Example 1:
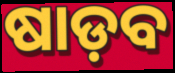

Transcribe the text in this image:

ଷାଡ଼ବ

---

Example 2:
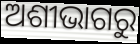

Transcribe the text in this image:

ଅଶୀଭାଗରୁ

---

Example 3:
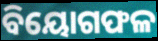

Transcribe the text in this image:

ବିୟୋଗଫଳ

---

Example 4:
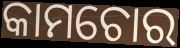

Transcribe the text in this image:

କାମଚୋର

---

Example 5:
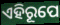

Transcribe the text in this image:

ଏହିରୂପେ